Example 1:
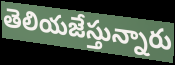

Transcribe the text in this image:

తెలియజేస్తున్నారు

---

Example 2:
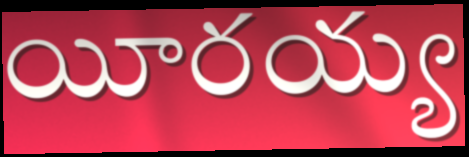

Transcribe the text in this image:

యీరయ్య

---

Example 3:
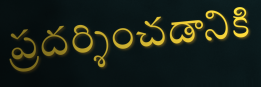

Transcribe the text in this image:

ప్రదర్శించడానికి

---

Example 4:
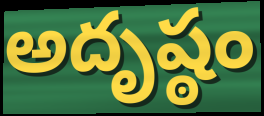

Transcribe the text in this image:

అదృష్ఠం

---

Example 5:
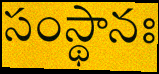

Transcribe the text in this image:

సంస్థానః